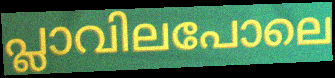
പ്ലാവിലപോലെ